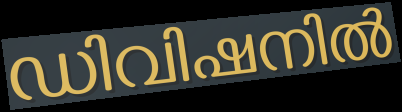
ഡിവിഷനിൽ